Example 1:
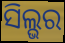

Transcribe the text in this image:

ସିଲ୍ଭର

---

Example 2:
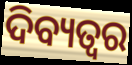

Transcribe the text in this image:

ଦିବ୍ୟତ୍ବର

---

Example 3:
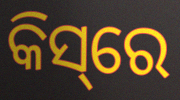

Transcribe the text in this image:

କିସ୍‌ରେ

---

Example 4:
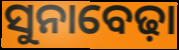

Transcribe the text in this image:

ସୁନାବେଢ଼ା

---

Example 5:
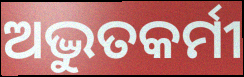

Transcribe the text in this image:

ଅଦ୍ଭୁତକର୍ମୀ